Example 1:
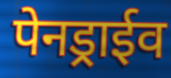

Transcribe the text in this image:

पेनड्राईव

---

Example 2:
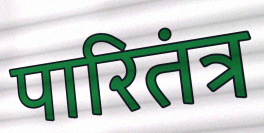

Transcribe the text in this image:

पारितंत्र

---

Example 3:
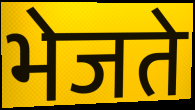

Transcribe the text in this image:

भेजते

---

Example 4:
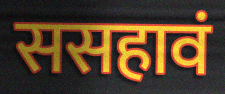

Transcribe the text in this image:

ससहावं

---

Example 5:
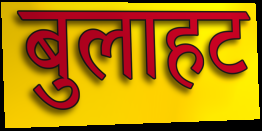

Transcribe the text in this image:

बुलाहट